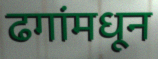
ढगांमधून